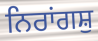
ਨਿਰਾਂਗਸ਼ੁ